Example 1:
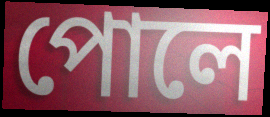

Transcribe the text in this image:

পোলে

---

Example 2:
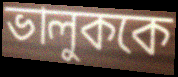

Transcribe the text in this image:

ভালুককে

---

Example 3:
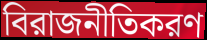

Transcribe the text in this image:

বিরাজনীতিকরণ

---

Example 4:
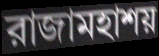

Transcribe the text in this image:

রাজামহাশয়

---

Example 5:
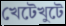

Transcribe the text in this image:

খেটেখুটে